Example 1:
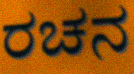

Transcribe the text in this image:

ರಚನ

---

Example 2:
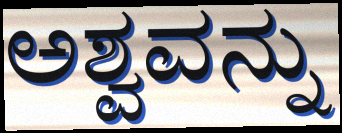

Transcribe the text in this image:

ಅಶ್ವವನ್ನು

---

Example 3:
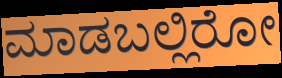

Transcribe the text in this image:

ಮಾಡಬಲ್ಲಿರೋ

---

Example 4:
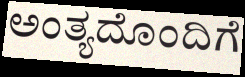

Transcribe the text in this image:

ಅಂತ್ಯದೊಂದಿಗೆ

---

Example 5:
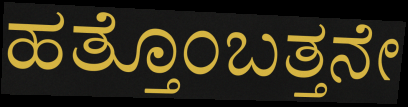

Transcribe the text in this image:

ಹತ್ತೊಂಬತ್ತನೇ